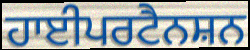
ਹਾਈਪਰਟੈਨਸ਼ਨ